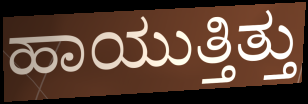
ಹಾಯುತ್ತಿತ್ತು